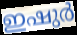
ഇഷുർ